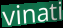
vinati